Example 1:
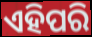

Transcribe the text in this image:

ଏହିପରି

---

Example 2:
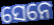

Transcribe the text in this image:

ସେନେ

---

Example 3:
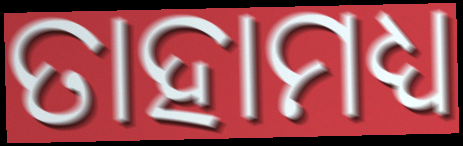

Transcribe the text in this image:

ତାହାମଧ୍ୟ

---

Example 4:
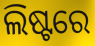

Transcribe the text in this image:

ଲିଷ୍ଟରେ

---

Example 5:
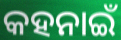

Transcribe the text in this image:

କହନାଇଁ